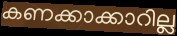
കണക്കാക്കാറില്ല